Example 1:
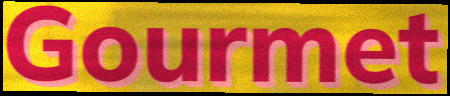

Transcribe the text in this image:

Gourmet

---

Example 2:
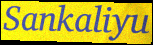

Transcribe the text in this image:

Sankaliyu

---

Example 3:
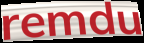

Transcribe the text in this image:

remdu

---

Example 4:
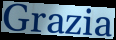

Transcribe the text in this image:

Grazia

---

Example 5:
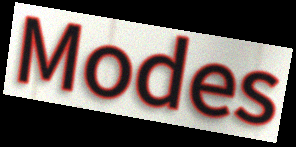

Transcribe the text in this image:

Modes